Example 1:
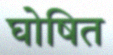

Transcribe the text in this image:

घोषित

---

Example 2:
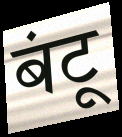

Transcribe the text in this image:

बंटू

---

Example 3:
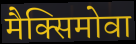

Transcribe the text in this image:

मैक्सिमोवा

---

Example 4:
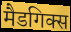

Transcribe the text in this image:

मैडगिक्स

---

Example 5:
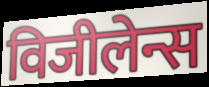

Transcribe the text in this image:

विजीलेन्स